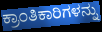
ಕ್ರಾಂತಿಕಾರಿಗಳನ್ನು